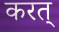
करत्